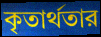
কৃতার্থতার